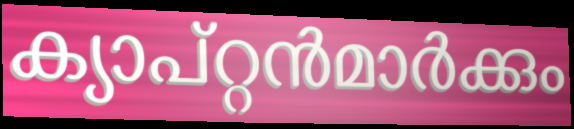
ക്യാപ്റ്റൻമാർക്കും